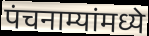
पंचनाम्यांमध्ये